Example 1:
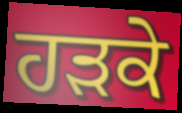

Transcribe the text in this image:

ਹੜਕੇ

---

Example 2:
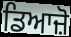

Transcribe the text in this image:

ਡਿਆਜ਼ੋ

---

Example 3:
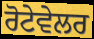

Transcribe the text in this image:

ਰੋਟੇਵੇਲਰ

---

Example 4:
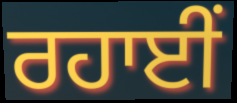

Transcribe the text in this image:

ਰਹਾਈਂ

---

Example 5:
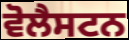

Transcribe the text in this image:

ਵੋਲੈਸਟਨ